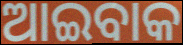
ଆଇବାକ